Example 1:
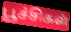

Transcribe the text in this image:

பூச்சிகள்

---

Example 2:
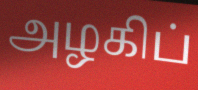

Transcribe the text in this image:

அழகிப்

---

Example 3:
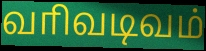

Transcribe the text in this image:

வரிவடிவம்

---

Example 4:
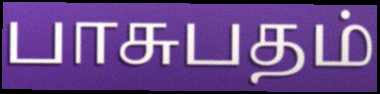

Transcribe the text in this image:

பாசுபதம்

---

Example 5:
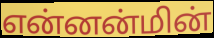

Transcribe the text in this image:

என்னன்மின்